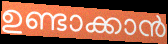
ഉണ്ടാക്കാൻ